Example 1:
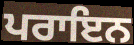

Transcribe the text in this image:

ਪਰਾਇਨ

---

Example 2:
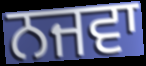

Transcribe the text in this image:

ਨਜਵਾ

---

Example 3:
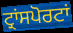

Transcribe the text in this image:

ਟ੍ਰਾਂਸਪੋਰਟਾਂ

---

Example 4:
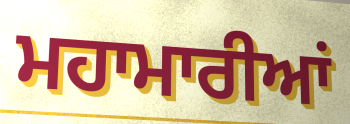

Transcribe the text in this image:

ਮਹਾਮਾਰੀਆਂ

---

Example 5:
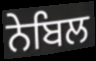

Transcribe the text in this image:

ਨੇਬਿਲ